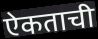
ऐकताची